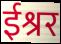
ईश्रर